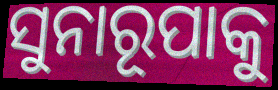
ସୁନାରୂପାକୁ